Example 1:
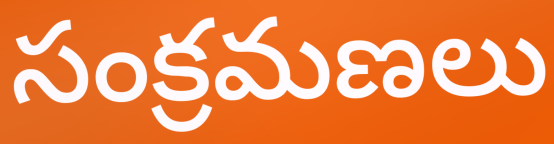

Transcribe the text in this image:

సంక్రమణలు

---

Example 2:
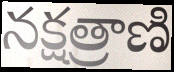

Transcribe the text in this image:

నక్షత్రాణి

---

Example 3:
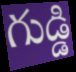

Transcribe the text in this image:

గుడ్డి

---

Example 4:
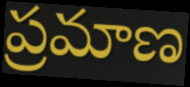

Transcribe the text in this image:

ప్రమాణ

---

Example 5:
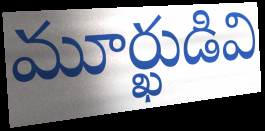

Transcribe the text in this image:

మూర్ఖుడివి